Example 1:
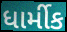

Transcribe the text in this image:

ધાર્મીક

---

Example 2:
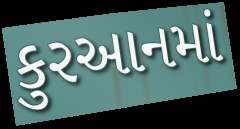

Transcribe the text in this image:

કુરઆનમાં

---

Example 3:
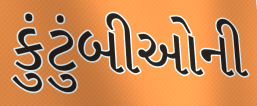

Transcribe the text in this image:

કુંટુંબીઓની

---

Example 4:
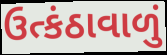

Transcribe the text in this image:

ઉત્કંઠાવાળું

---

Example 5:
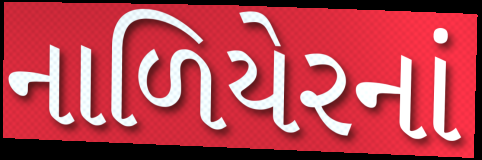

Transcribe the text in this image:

નાળિયેરનાં